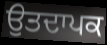
ਉਤਦਾਪਕ